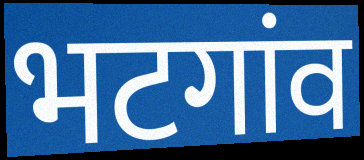
भटगांव